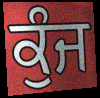
ਕੁੰਜ